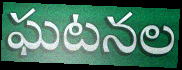
ఘటనల